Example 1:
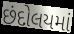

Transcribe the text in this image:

છંદોલયમાં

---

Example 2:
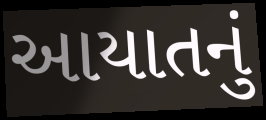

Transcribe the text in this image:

આયાતનું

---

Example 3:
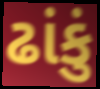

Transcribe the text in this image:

ઢાંકું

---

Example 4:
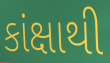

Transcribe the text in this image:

કાંક્ષાથી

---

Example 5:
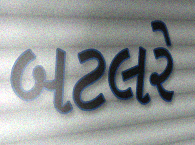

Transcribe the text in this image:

બટલરે